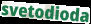
svetodioda